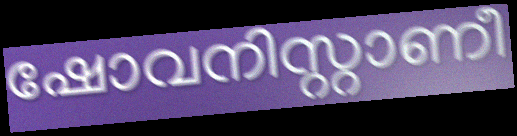
ഷോവനിസ്റ്റാണീ